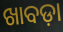
ଖାବଡ଼ା